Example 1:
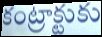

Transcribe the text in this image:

కంట్రాక్టుకు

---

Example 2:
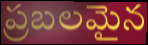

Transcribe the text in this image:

ప్రబలమైన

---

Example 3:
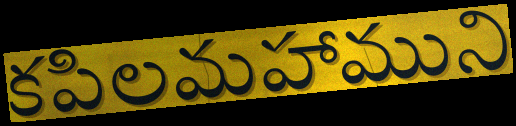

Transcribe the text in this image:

కపిలమహాముని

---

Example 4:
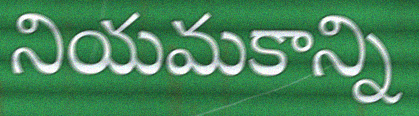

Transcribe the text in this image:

నియమకాన్ని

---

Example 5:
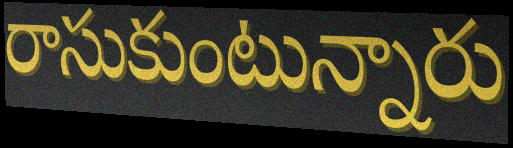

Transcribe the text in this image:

రాసుకుంటున్నారు